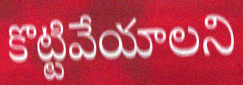
కొట్టివేయాలని